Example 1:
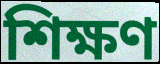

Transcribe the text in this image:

শিক্ষণ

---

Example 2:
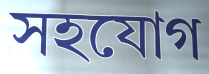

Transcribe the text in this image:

সহযোগ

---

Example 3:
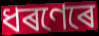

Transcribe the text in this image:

ধৰণেৰে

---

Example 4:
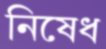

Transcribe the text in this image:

নিষেধ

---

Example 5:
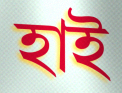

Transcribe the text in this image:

হাই